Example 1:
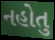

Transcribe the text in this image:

નહોતુ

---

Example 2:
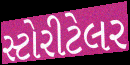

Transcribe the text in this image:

સ્ટોરીટેલર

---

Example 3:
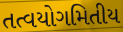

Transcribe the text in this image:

તત્વયોગમિતીય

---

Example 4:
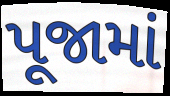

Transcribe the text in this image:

પૂજામાં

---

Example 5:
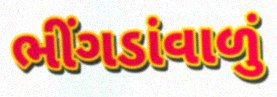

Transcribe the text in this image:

ભીંગડાંવાળું